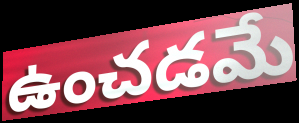
ఉంచడమే